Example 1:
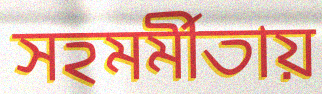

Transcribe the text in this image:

সহমর্মীতায়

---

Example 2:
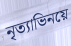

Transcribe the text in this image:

নৃত্যাভিনয়ে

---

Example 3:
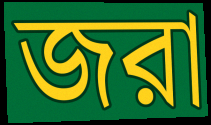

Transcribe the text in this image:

জরা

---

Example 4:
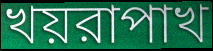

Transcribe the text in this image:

খয়রাপাখ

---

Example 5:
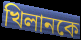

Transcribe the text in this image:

খিলানকে